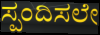
ಸ್ಪಂದಿಸಲೇ